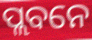
ପ୍ଲବନେ